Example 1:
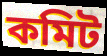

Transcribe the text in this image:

কমিট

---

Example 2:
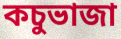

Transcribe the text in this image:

কচুভাজা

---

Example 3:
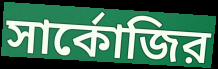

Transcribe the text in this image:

সার্কোজির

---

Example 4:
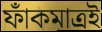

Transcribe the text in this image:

ফাঁকমাত্রই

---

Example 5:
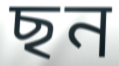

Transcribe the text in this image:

ছন